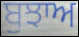
ਬੁਝਾਅ